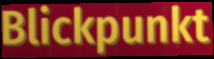
Blickpunkt